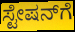
ಸ್ಟೇಷನ್‌ಗೆ